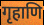
गृहाणि